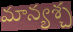
మాన్యశ్చ